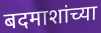
बदमाशांच्या